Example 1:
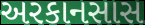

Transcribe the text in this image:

અરકાનસાસ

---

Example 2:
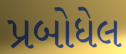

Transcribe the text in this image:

પ્રબોધેલ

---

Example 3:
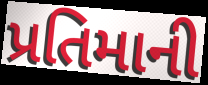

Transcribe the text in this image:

પ્રતિમાની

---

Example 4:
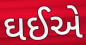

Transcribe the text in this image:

ઘઈએ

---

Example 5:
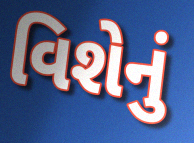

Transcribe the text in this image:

વિશેનું